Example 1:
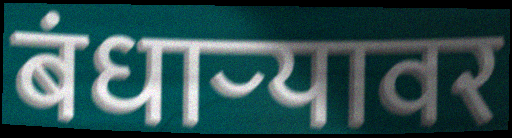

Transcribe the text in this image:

बंधाऱ्यावर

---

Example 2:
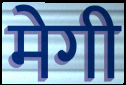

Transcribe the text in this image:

मेगी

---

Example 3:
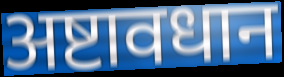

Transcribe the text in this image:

अष्टावधान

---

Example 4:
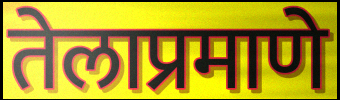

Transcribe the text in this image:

तेलाप्रमाणे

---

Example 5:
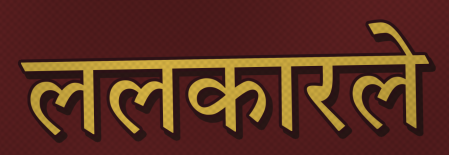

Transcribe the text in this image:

ललकारले